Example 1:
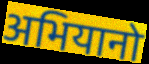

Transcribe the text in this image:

अभियानो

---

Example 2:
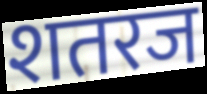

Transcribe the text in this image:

शतरज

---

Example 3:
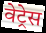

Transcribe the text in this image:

वेट्रेस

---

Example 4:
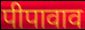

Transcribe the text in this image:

पीपावाव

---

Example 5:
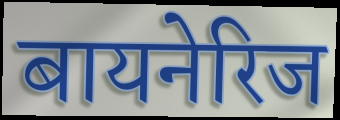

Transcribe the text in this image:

बायनेरिज